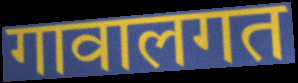
गावालगत